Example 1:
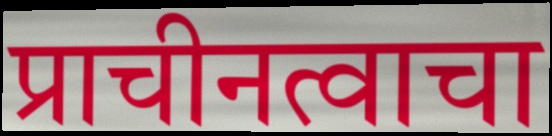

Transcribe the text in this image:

प्राचीनत्वाचा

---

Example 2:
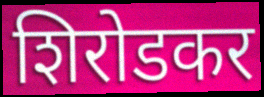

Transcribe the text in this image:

शिरोडकर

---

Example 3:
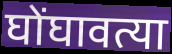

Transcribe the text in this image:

घोंघावत्या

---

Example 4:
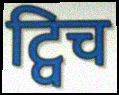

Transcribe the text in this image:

ट्विच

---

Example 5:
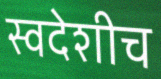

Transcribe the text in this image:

स्वदेशीच